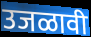
उजळावी